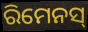
ରିମେନସ୍